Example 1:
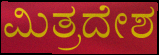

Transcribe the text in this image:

ಮಿತ್ರದೇಶ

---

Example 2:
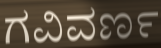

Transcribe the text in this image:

ಗವಿವರ್ಣ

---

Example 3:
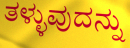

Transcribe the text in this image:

ತಳ್ಳುವುದನ್ನು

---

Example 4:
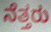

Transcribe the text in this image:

ನೆತ್ತರು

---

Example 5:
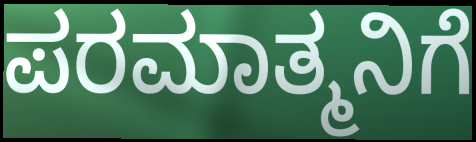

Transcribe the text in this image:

ಪರಮಾತ್ಮನಿಗೆ